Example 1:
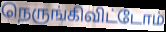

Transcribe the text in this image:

நெருங்கிவிட்டோம்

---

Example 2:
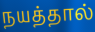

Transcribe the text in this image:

நயத்தால்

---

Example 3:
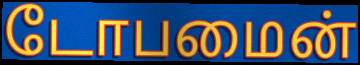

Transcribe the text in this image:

டோபமைன்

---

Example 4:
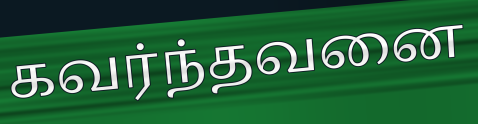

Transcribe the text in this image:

கவர்ந்தவனை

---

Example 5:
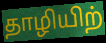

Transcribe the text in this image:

தாழியிற்